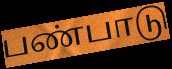
பண்பாடு